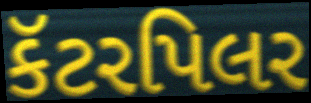
કૅટરપિલર